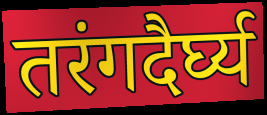
तरंगदैर्घ्य